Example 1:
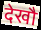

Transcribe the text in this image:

देखौ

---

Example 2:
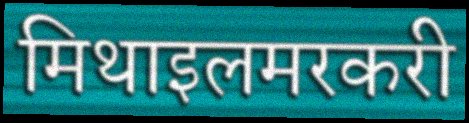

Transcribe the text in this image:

मिथाइलमरकरी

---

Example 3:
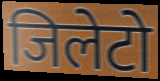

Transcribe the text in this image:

जिलेटो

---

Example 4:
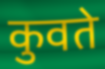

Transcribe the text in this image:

कुवते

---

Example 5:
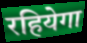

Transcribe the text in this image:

रहियेगा